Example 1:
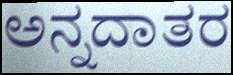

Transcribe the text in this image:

ಅನ್ನದಾತರ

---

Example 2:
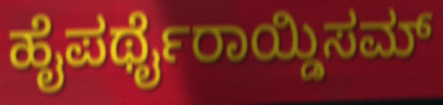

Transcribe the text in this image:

ಹೈಪರ್ಥೈರಾಯ್ಡಿಸಮ್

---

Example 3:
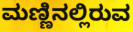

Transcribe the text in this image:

ಮಣ್ಣಿನಲ್ಲಿರುವ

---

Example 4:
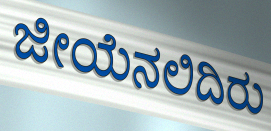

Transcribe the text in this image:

ಜೀಯೆನಲಿದಿರು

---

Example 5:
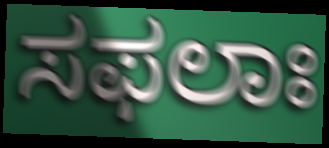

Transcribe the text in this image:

ಸಫಲಾಃ